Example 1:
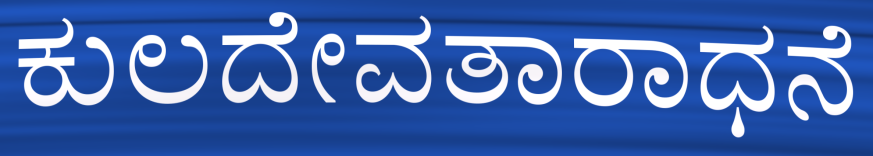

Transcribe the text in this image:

ಕುಲದೇವತಾರಾಧನೆ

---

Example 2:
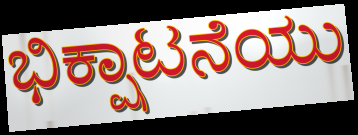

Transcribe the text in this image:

ಭಿಕ್ಷಾಟನೆಯು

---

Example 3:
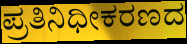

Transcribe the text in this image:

ಪ್ರತಿನಿಧೀಕರಣದ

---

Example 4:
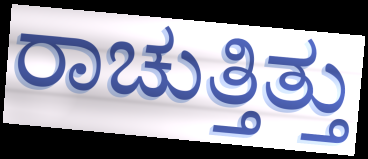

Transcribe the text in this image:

ರಾಚುತ್ತಿತ್ತು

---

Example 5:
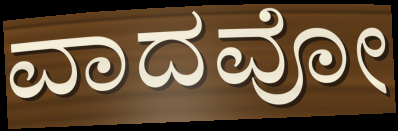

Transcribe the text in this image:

ವಾದವೋ